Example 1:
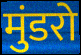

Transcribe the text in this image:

मुंडरो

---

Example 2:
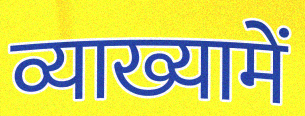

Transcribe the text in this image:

व्याख्यामें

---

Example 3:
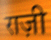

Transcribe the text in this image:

राज़ी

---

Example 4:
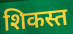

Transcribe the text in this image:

शिकस्त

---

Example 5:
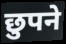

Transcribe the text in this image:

छुपने